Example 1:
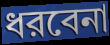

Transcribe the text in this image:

ধরবেনা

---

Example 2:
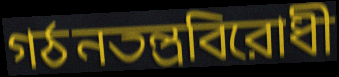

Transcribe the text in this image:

গঠনতন্ত্রবিরোধী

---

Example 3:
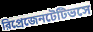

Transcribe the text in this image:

রিপ্রেজেনটেটিভসে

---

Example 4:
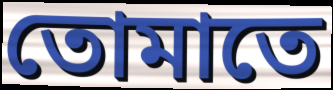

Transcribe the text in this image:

তোমাতে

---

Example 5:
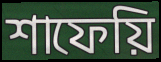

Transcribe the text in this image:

শাফেয়ি